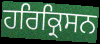
ਹਰਿਕ੍ਰਿਸਨ